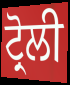
ਟ੍ਰੋਲੀ